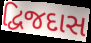
દ્વિજદાસ